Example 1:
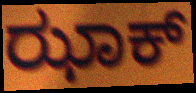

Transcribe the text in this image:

ಝಾಕ್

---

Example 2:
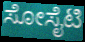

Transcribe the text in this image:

ಸೋಸೈಟಿ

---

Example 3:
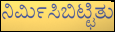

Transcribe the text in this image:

ನಿರ್ಮಿಸಿಬಿಟ್ಟಿತು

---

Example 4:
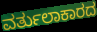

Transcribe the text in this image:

ವರ್ತುಲಾಕಾರದ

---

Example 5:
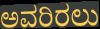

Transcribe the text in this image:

ಅವರಿರಲು